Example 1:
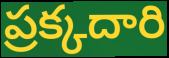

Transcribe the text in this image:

ప్రక్కదారి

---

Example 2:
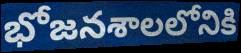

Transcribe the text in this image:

భోజనశాలలోనికి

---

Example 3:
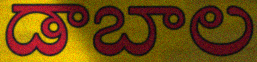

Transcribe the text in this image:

డాబాల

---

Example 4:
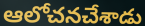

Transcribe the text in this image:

ఆలోచనచేశాడు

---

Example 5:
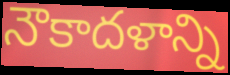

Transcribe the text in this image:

నౌకాదళాన్ని